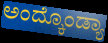
ಅಂದ್ಕೊಂಡ್ಯಾ